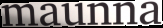
maunna